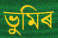
ভুমিৰ